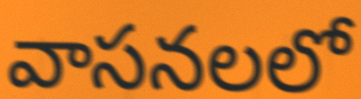
వాసనలలో